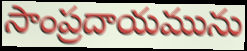
సాంప్రదాయమును